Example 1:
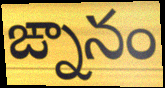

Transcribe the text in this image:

ఙ్నానం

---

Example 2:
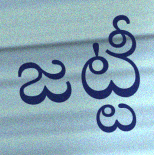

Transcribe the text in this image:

జట్టీ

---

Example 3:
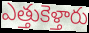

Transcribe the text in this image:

ఎత్తుకెళ్తారు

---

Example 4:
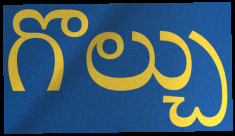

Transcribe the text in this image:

గొల్చు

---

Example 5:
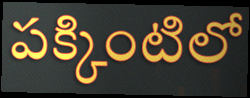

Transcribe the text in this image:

పక్కింటిలో